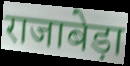
राजाबेड़ा